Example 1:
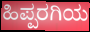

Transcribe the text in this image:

ಹಿಪ್ಪರಗಿಯ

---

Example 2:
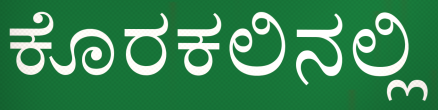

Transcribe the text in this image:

ಕೊರಕಲಿನಲ್ಲಿ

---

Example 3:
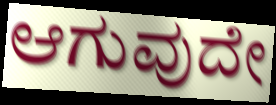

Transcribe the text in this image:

ಆಗುವುದೇ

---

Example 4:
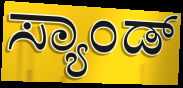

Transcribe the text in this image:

ಸ್ಯಾಂಡ್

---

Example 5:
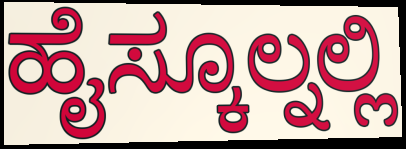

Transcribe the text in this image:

ಹೈಸ್ಕೂಲ್ನಲ್ಲಿ